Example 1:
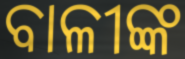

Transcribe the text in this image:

ବାଳୀଙ୍କ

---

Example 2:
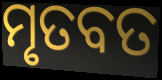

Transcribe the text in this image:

ମୃତବତ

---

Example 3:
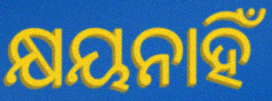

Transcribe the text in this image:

କ୍ଷୟନାହିଁ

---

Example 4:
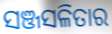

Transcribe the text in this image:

ସଞ୍ଜସଳିତାର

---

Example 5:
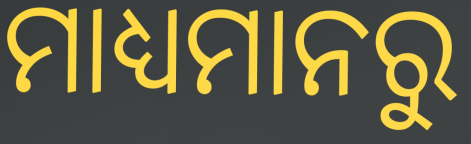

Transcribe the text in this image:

ମାଧ୍ୟମାନରୁ